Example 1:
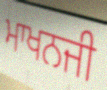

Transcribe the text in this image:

ਮਾਖਨਜੀ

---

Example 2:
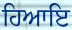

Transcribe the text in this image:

ਹਿਆਇ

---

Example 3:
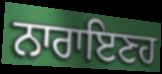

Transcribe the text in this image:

ਨਾਰਾਇਣਹ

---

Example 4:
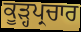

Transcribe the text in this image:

ਕੂੜ੍ਹਪ੍ਰਚਾਰ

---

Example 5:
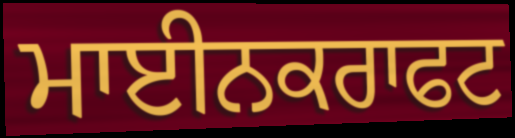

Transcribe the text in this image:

ਮਾਈਨਕਰਾਫਟ